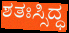
ಶತಃಸ್ಸಿದ್ಧ